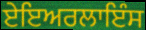
ਏਇਅਰਲਾਇੰਸ